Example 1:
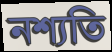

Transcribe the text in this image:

নশ্যতি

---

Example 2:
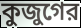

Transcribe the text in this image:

কুজুগের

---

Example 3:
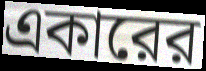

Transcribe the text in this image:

একারের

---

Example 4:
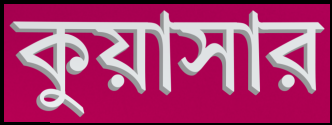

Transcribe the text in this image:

কুয়াসার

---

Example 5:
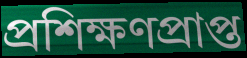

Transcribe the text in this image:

প্রশিক্ষণপ্রাপ্ত